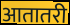
आतातरी